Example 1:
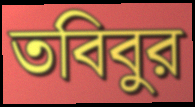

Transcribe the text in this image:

তবিবুর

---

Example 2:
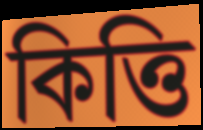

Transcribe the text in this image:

কিত্তি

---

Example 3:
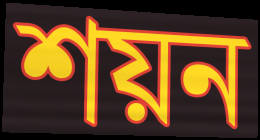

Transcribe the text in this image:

শয়ন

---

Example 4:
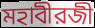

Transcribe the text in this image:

মহাবীরজী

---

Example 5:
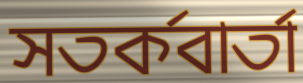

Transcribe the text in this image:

সতর্কবার্তা